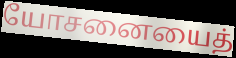
யோசனையைத்